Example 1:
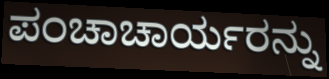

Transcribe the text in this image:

ಪಂಚಾಚಾರ್ಯರನ್ನು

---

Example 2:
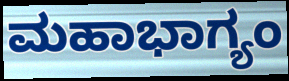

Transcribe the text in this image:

ಮಹಾಭಾಗ್ಯಂ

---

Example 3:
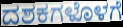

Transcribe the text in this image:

ದಶಕಗಳೊಳಗೆ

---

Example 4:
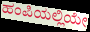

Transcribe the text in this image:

ಹಂಪಿಯಲ್ಲಿಯೇ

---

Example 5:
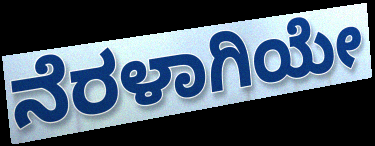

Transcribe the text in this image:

ನೆರಳಾಗಿಯೇ